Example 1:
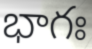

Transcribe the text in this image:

భాగః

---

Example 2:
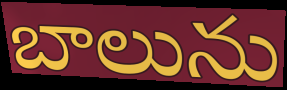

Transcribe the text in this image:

బాలును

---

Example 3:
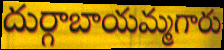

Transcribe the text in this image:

దుర్గాబాయమ్మగారు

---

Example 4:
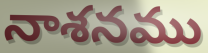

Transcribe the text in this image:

నాశనము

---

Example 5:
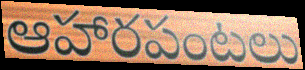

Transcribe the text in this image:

ఆహారపంటలు